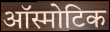
ऑस्मोटिक